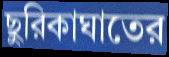
ছুরিকাঘাতের